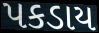
પકડાય